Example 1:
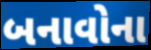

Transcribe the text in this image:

બનાવોના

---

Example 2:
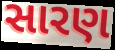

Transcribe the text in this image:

સારણ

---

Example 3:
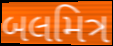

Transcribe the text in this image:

બલમિત્ર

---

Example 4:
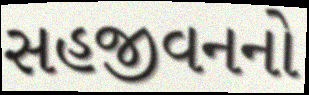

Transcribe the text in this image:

સહજીવનનો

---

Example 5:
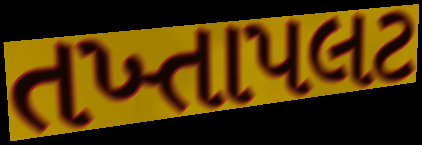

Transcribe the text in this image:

તખ્તાપલટ